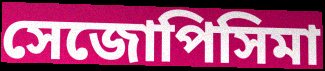
সেজোপিসিমা